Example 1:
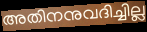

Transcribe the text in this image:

അതിനനുവദിച്ചില്ല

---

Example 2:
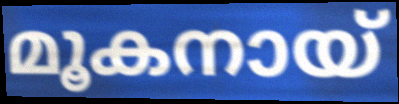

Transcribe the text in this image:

മൂകനായ്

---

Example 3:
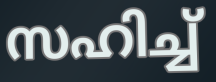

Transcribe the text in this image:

സഹിച്ച്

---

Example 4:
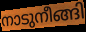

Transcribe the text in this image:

നാടുനീങ്ങി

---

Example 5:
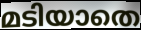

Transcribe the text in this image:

മടിയാതെ